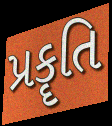
પ્રકૄતિ